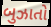
બુઝાતો